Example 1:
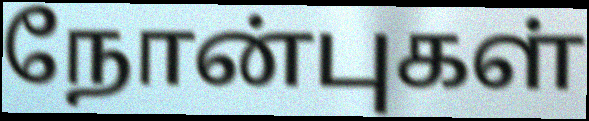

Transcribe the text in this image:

நோன்புகள்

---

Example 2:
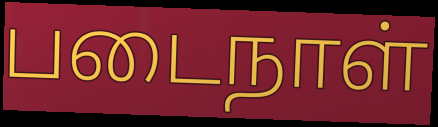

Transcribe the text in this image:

படைநாள்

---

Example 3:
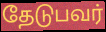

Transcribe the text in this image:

தேடுபவர்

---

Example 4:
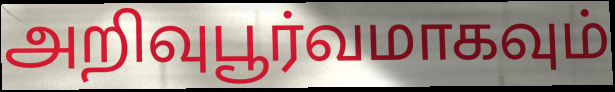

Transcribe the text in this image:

அறிவுபூர்வமாகவும்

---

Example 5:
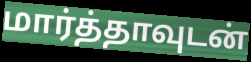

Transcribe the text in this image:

மார்த்தாவுடன்